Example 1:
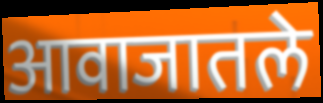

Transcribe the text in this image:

आवाजातले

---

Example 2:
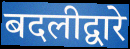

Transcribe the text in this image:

बदलीद्वारे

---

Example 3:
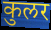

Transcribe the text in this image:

कुलर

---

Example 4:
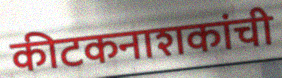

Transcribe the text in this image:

कीटकनाशकांची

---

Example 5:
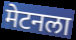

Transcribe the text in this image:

मेटनला